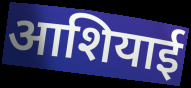
आशियाई